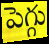
పెగ్గు